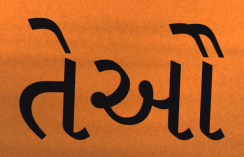
તેઓે